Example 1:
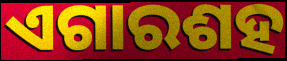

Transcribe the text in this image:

ଏଗାରଶହ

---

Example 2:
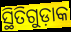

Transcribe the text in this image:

ସ୍ଥିତିଗୁଡ଼ାକ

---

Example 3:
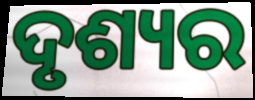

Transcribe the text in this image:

ଦୃଶ୍ୟର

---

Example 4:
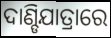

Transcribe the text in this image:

ଦାଣ୍ଡିଯାତ୍ରାରେ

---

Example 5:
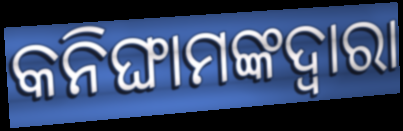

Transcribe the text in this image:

କନିଙ୍ଘାମଙ୍କଦ୍ଵାରା